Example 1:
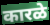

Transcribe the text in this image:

कारळे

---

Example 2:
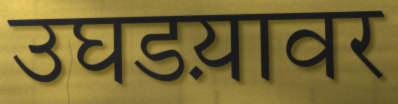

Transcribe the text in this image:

उघडय़ावर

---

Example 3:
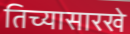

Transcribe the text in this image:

तिच्यासारखे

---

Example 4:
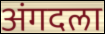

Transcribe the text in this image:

अंगदला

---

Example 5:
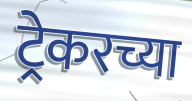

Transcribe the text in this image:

ट्रेकरच्या